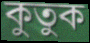
কুতুক